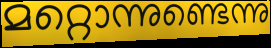
മറ്റൊന്നുണ്ടെന്നു